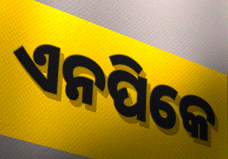
ଏନପିକେ